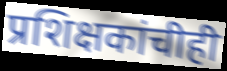
प्रशिक्षकांचीही